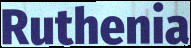
Ruthenia